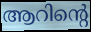
ആറിന്റെ